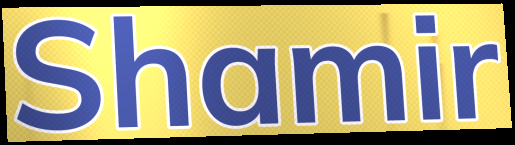
Shamir